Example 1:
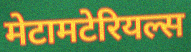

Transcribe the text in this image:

मेटामटेरियल्स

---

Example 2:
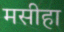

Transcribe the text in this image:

मसीहा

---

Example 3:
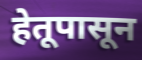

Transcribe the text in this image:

हेतूपासून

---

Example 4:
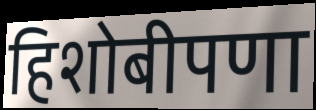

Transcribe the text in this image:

हिशोबीपणा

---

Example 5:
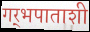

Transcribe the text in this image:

गर्भपाताशी